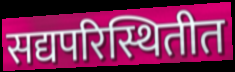
सद्यपरिस्थितीत